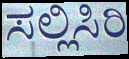
ಸಲ್ಲಿಸಿರಿ